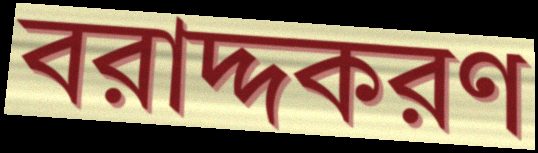
বরাদ্দকরণ